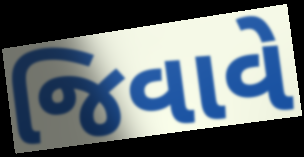
જિવાવે